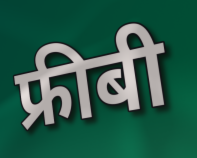
फ्रीबी